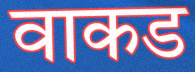
वाकड